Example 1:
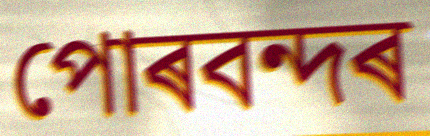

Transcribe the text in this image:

পোৰবন্দৰ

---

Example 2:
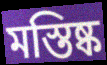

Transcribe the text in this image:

মস্তিষ্ক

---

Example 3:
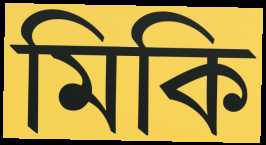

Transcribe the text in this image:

মিকি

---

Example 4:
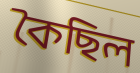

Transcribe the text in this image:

কৈছিল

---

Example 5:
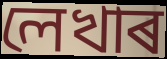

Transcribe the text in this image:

লেখাৰ